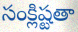
సంక్లిష్టతా